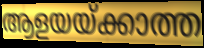
ആളയയ്ക്കാത്ത